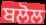
ਬਲੋਲ